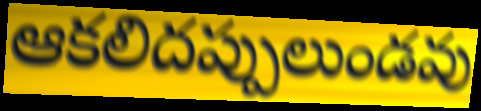
ఆకలిదప్పులుండవు